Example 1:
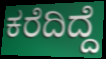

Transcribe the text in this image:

ಕರೆದಿದ್ದೆ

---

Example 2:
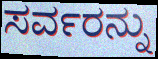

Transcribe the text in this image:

ಸರ್ವರನ್ನು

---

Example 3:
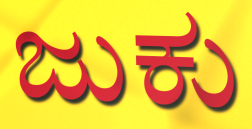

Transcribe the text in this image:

ಜುಕು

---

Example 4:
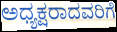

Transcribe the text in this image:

ಅಧ್ಯಕ್ಷರಾದವರಿಗೆ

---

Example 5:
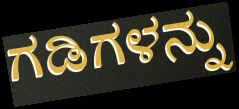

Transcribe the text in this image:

ಗಡಿಗಳನ್ನು